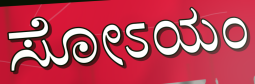
ಸೋಽಯಂ